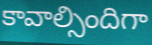
కావాల్సిందిగా